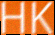
HK